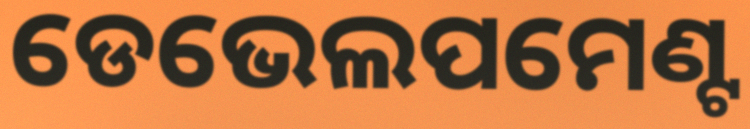
ଡେଭେଲପମେଣ୍ଟ